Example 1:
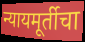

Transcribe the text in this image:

न्यायमूर्तीचा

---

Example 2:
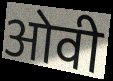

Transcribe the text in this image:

ओवी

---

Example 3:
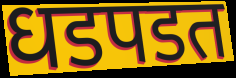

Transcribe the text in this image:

धडपडत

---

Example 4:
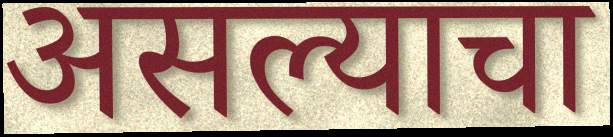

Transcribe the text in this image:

असल्याचा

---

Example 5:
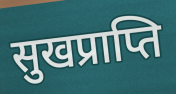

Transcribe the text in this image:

सुखप्राप्ति